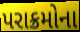
પરાક્રમોના